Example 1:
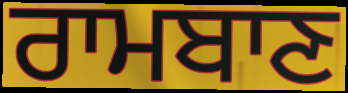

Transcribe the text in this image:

ਰਾਮਬਾਣ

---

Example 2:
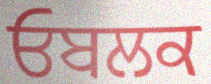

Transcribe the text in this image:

ਓਬਲਕ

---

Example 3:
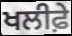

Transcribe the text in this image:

ਖਲੀਫ਼ੇ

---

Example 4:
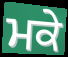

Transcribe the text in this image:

ਮਕੇ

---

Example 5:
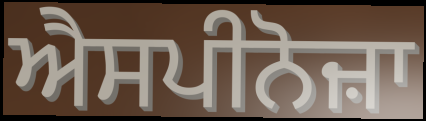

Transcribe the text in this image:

ਐਸਪੀਨੋਜ਼ਾ